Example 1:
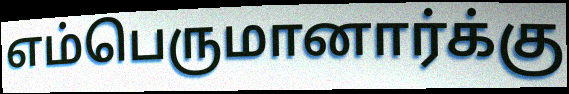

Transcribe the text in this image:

எம்பெருமானார்க்கு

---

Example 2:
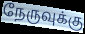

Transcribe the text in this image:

நேருவுக்கு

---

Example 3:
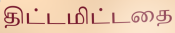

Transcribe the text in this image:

திட்டமிட்டதை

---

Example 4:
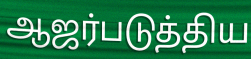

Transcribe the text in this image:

ஆஜர்படுத்திய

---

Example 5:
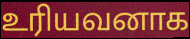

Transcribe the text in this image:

உரியவனாக